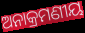
ଅନାକ୍ରମଣୀୟ